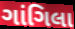
ગાંગિલા